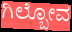
ಗಿಲ್ಬೋವ